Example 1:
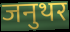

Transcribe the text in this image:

जनुथर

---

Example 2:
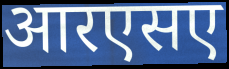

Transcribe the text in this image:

आरएसए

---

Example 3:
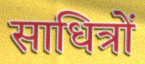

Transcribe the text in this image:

साधित्रों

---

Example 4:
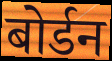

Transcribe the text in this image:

बोर्डन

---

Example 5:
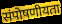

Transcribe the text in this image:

संपोषणीयता